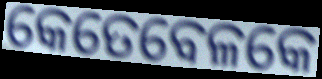
କେତେବେଳକେ